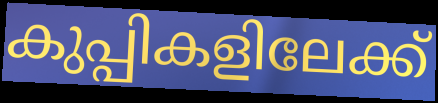
കുപ്പികളിലേക്ക്